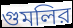
গুমলির